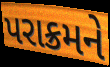
પરાક્રમને